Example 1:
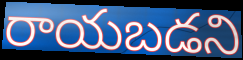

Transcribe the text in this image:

రాయబడని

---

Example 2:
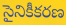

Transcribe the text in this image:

సైనికీకరణ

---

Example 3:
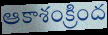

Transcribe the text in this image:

ఆకాశంక్రింద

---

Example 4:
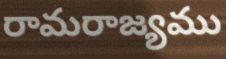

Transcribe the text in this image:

రామరాజ్యము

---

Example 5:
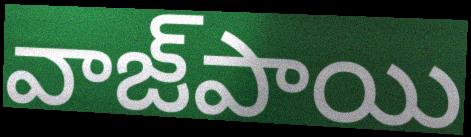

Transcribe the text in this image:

వాజ్‌పాయి